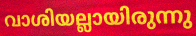
വാശിയല്ലായിരുന്നു